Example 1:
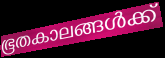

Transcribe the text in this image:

ഭൂതകാലങ്ങൾക്ക്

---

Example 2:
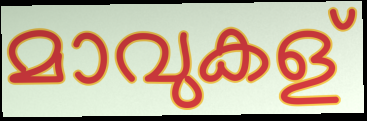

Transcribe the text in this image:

മാവുകള്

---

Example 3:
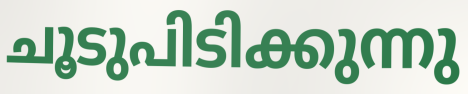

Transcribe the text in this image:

ചൂടുപിടിക്കുന്നു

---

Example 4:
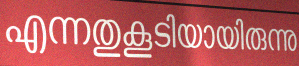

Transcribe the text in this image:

എന്നതുകൂടിയായിരുന്നു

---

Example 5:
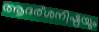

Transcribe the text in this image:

ആദര്ശനിഷ്ഠയും